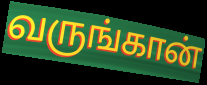
வருங்கான்